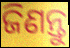
ଜିଣନ୍ତୁ